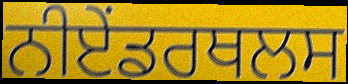
ਨੀਏਂਡਰਥਲਸ